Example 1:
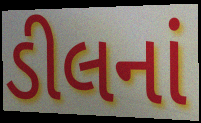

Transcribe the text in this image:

ડીલનાં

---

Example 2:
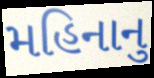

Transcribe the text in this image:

મહિનાનુ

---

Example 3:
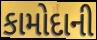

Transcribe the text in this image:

કામોદાની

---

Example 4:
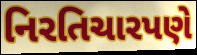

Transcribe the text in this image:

નિરતિચારપણે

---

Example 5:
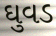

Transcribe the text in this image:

ઘુવડ